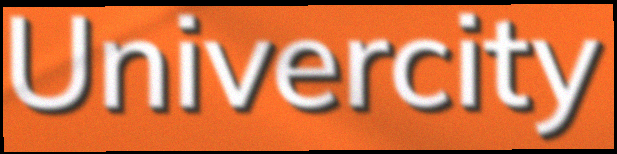
Univercity